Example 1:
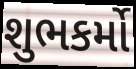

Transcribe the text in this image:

શુભકર્મો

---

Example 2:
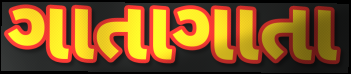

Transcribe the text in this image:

ગાતાગાતા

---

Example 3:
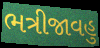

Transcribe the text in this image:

ભત્રીજાવહુ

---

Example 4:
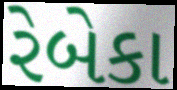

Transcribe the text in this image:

રેબેકા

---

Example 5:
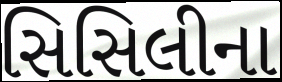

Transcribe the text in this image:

સિસિલીના